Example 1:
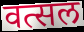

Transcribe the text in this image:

वत्सल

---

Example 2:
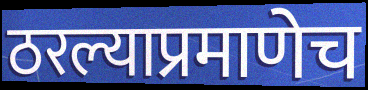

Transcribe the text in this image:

ठरल्याप्रमाणेच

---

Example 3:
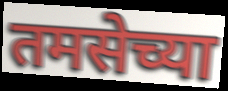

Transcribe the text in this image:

तमसेच्या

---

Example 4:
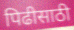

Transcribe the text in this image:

पिढीसाठी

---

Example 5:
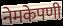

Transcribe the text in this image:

नेमकेपणी